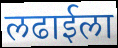
लढाईला